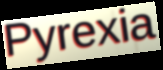
Pyrexia